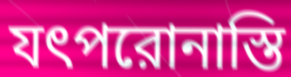
যৎপরোনাস্তি